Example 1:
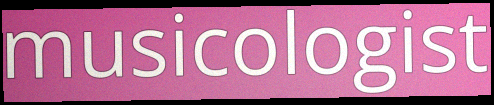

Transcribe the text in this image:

musicologist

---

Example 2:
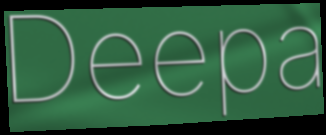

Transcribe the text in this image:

Deepa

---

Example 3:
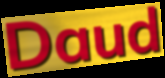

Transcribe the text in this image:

Daud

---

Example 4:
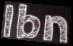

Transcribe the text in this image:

Ibn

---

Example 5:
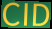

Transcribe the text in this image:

CID